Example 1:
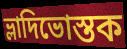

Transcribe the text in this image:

ভ্লাদিভোস্তক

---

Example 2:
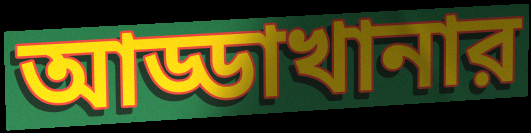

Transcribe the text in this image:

আড্ডাখানার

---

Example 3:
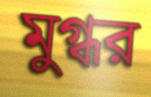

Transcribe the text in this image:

মুগ্ধর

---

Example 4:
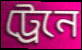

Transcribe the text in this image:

ট্রেনে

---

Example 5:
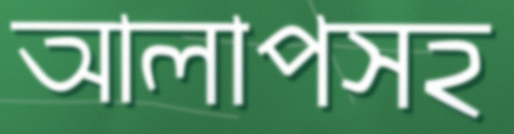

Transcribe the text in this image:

আলাপসহ